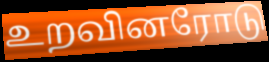
உறவினரோடு